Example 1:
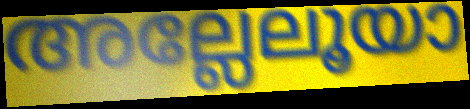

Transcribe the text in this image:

അല്ലേലൂയാ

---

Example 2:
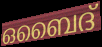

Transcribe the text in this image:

ഒബൈദ്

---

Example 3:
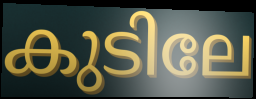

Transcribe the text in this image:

കുടിലേ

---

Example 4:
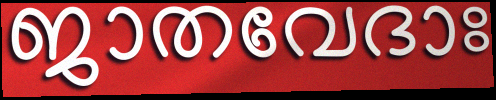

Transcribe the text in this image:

ജാതവേദാഃ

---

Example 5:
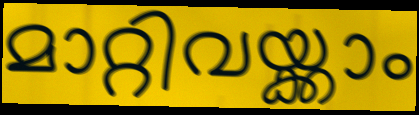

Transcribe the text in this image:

മാറ്റിവയ്ക്കാം